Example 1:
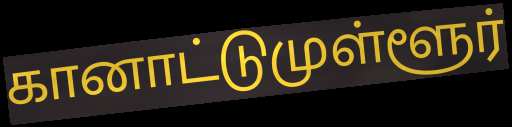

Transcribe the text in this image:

கானாட்டுமுள்ளூர்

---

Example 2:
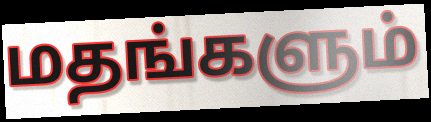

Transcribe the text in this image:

மதங்களும்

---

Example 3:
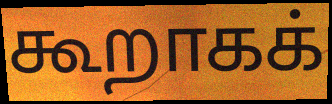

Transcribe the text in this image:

கூறாகக்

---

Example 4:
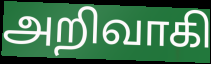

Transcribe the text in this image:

அறிவாகி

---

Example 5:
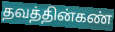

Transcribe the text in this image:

தவத்தின்கண்